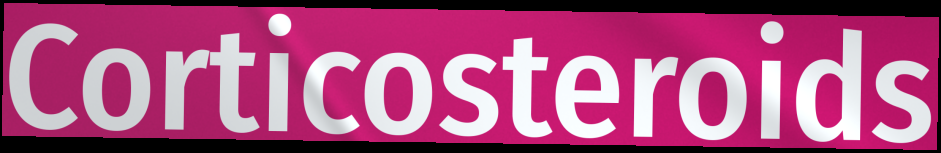
Corticosteroids